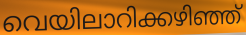
വെയിലാറിക്കഴിഞ്ഞ്